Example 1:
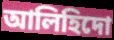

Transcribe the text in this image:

আলিহিদো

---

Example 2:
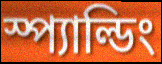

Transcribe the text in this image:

স্প্যাল্ডিং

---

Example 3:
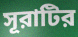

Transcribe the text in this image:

সূরাটির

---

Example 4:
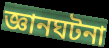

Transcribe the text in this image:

জ্ঞানঘটনা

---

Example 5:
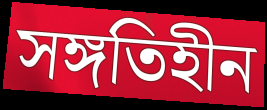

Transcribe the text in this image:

সঙ্গতিহীন